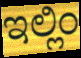
ಇಲ್ಲಿಂ